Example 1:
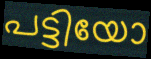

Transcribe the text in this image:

പട്ടിയോ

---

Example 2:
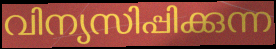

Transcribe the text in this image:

വിന്യസിപ്പിക്കുന്ന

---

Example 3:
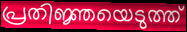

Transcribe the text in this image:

പ്രതിജ്ഞയെടുത്ത്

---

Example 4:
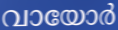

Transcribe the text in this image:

വായോർ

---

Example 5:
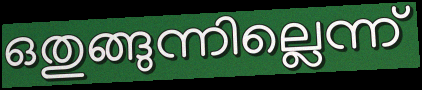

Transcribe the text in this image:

ഒതുങ്ങുന്നില്ലെന്ന്